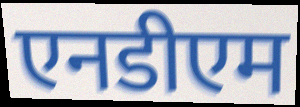
एनडीएम